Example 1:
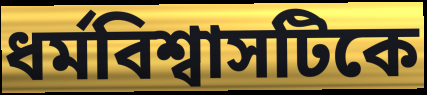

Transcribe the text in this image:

ধর্মবিশ্বাসটিকে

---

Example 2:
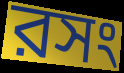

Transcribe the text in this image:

রসং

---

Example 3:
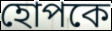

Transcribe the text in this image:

হোপকে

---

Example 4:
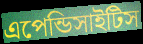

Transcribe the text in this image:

এপেন্ডিসাইটিস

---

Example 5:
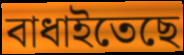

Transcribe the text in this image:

বাধাইতেছে